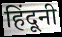
हिंदूनी